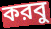
করবু